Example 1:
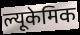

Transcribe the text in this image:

ल्यूकेमिक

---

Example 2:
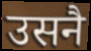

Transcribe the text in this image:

उसनै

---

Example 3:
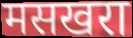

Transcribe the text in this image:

मसखरा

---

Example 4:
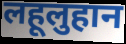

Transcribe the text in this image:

लहूलुहान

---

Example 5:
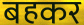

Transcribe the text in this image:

बहकर